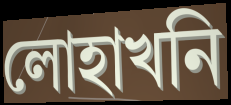
লোহাখনি